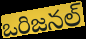
ఒరిజనల్